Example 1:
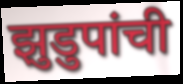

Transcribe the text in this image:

झुडुपांची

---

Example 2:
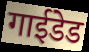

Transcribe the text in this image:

गाईडेड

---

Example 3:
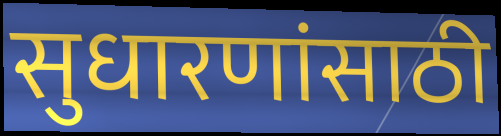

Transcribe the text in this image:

सुधारणांसाठी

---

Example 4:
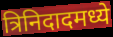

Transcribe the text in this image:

त्रिनिदादमध्ये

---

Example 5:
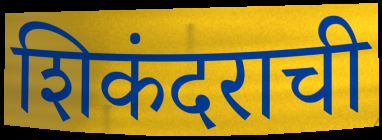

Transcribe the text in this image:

शिकंदराची